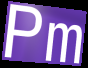
Pm